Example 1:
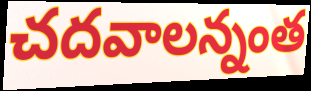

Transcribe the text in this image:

చదవాలన్నంత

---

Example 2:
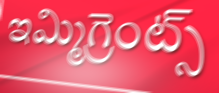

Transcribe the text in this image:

ఇమ్మిగ్రెంట్స్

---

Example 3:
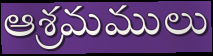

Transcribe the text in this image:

ఆశ్రమములు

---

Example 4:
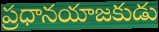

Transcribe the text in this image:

ప్రధానయాజకుడు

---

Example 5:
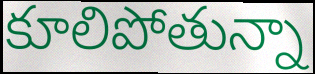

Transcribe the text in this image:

కూలిపోతున్నా